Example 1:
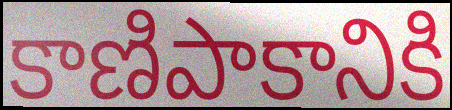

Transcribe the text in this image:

కాణిపాకానికి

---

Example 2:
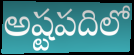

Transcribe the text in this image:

అష్టపదిలో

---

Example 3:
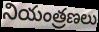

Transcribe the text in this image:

నియంత్రణలు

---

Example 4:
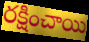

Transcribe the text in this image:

రక్షించాయి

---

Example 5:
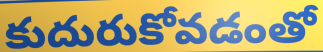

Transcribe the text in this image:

కుదురుకోవడంతో